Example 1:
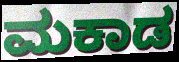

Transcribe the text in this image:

ಮಕಾಡ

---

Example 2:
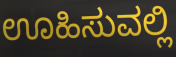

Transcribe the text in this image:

ಊಹಿಸುವಲ್ಲಿ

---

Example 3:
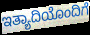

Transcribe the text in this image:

ಇತ್ಯಾದಿಯೊಂದಿಗೆ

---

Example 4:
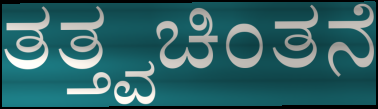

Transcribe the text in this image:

ತತ್ತ್ವಚಿಂತನೆ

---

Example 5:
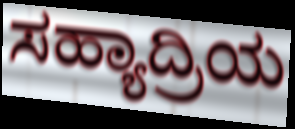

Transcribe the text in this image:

ಸಹ್ಯಾದ್ರಿಯ